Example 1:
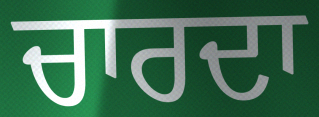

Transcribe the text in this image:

ਚਾਰਦਾ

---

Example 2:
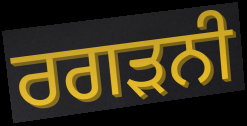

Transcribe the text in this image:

ਰਗੜਨੀ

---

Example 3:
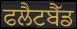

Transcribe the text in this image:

ਫਲੈਟਬੈੱਡ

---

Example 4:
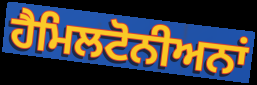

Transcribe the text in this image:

ਹੈਮਿਲਟੋਨੀਅਨਾਂ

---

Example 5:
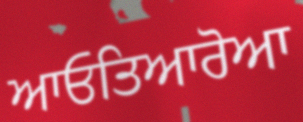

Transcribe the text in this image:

ਆਓਤਿਆਰੋਆ